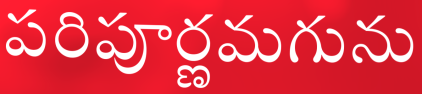
పరిపూర్ణమగును